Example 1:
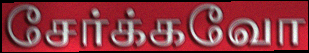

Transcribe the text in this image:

சேர்க்கவோ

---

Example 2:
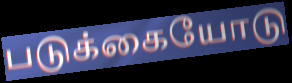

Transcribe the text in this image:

படுக்கையோடு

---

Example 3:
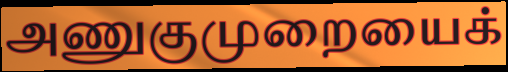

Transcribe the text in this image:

அணுகுமுறையைக்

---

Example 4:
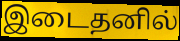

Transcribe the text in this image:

இடைதனில்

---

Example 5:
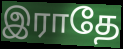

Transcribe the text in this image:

இராதே